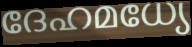
ദേഹമധ്യേ